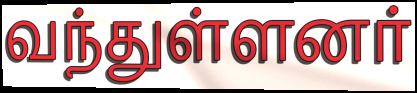
வந்துள்ளனர்